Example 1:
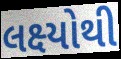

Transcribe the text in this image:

લક્ષ્યોથી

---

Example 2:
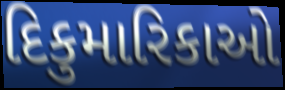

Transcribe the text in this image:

દિકુમારિકાઓ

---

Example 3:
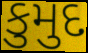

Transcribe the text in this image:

કુમુદ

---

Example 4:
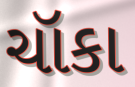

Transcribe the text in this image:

ચૉકા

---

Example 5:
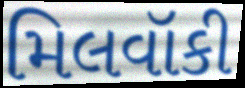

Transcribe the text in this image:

મિલવૉકી